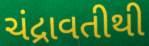
ચંદ્રાવતીથી